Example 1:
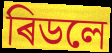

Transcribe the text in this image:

ৰিডলে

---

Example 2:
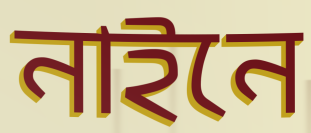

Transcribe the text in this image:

নাইনে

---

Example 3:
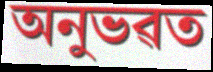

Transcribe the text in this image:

অনুভৱত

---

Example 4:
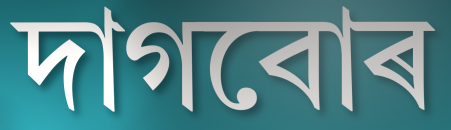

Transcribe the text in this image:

দাগবোৰ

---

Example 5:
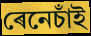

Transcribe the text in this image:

ৰেনেচাঁই